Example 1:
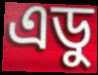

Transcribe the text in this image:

এডু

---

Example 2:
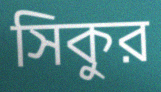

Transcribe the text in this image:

সিকুর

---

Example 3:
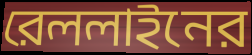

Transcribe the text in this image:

রেললাইনের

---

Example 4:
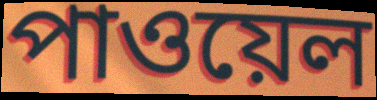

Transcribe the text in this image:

পাওয়েল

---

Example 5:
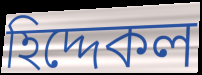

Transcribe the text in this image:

হিদ্দেকল